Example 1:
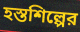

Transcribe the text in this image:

হস্তশিল্পের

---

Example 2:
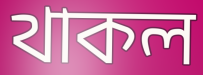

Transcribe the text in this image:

থাকল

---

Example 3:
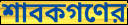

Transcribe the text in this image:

শাবকগণের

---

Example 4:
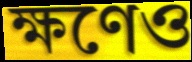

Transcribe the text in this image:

ক্ষণেও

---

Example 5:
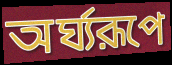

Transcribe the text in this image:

অর্ঘ্যরূপে